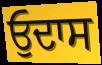
ਓੁਦਾਸ